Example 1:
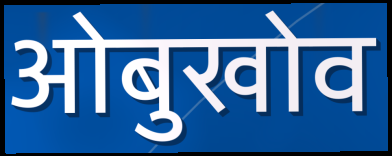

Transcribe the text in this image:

ओबुखोव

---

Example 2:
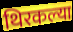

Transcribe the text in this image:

थिरकल्या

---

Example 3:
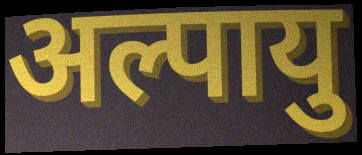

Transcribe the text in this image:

अल्पायु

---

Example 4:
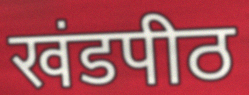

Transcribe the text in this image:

खंडपीठ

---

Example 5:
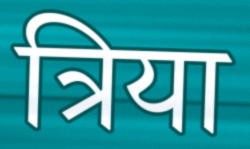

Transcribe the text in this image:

त्रिया